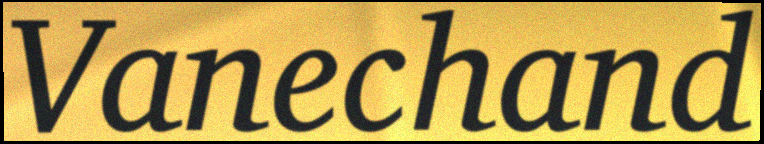
Vanechand